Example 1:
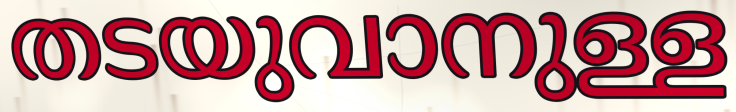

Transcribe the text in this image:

തടയുവാനുള്ള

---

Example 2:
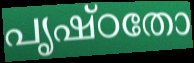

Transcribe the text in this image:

പൃഷ്ഠതോ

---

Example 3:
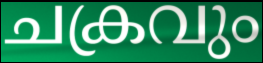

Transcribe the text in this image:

ചക്രവും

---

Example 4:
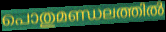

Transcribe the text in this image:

പൊതുമണ്ഡലത്തിൽ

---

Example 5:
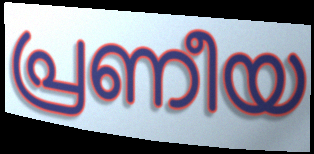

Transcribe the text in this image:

പ്രണീയ